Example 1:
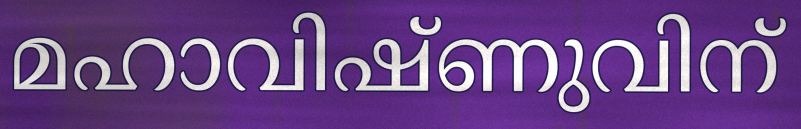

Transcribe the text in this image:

മഹാവിഷ്ണുവിന്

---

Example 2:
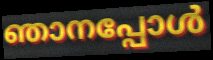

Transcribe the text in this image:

ഞാനപ്പോൾ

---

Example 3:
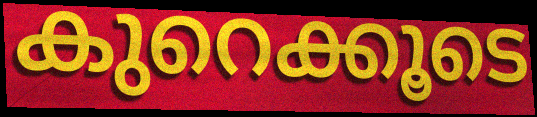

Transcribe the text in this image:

കുറെക്കൂടെ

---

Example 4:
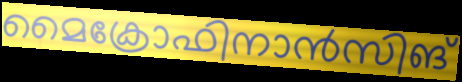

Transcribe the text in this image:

മൈക്രോഫിനാൻസിങ്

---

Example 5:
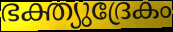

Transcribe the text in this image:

ഭക്ത്യുദ്രേകം